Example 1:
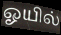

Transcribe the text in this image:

ஓயில்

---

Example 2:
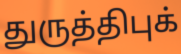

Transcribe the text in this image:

துருத்திபுக்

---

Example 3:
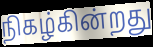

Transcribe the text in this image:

நிகழ்கின்றது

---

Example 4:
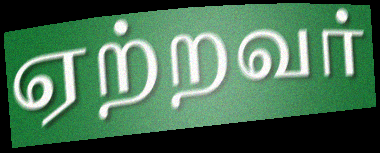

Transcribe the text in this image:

ஏற்றவர்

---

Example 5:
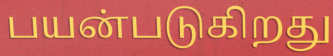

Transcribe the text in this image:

பயன்படுகிறது